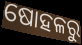
ଷୋହଳରୁ